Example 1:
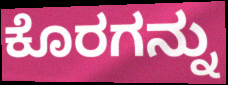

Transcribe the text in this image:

ಕೊರಗನ್ನು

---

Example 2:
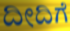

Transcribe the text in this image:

ದೀದಿಗೆ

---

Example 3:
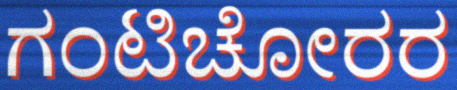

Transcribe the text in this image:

ಗಂಟಿಚೋರರ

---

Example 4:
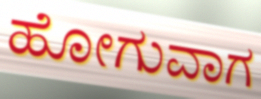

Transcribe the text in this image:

ಹೋಗುವಾಗ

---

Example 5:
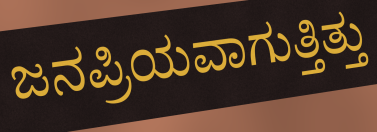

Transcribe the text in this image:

ಜನಪ್ರಿಯವಾಗುತ್ತಿತ್ತು